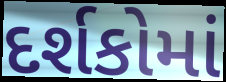
દર્શકોમાં